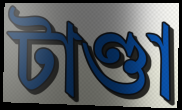
টাণ্ডা